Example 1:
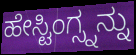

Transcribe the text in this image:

ಹೇಸ್ಟಿಂಗ್ಸ್ನನ್ನು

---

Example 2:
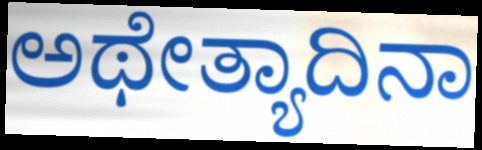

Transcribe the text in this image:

ಅಥೇತ್ಯಾದಿನಾ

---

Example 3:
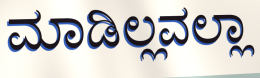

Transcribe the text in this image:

ಮಾಡಿಲ್ಲವಲ್ಲಾ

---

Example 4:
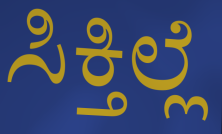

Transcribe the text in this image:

ಸಿಕ್ತಿಲ್ಲೆ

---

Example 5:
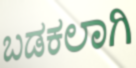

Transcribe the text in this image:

ಬಡಕಲಾಗಿ